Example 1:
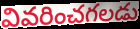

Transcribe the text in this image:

వివరించగలడు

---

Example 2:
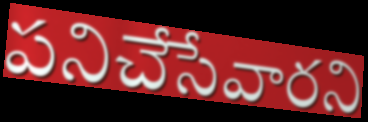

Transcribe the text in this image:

పనిచేసేవారని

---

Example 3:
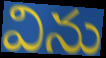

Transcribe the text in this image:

విను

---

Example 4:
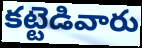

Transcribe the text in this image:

కట్టెడివారు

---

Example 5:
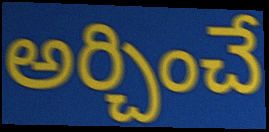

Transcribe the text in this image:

అర్చించే